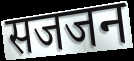
सजजन